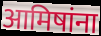
आमिषांना